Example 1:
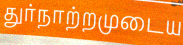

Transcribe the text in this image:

துர்நாற்றமுடைய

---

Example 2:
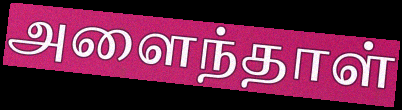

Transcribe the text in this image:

அளைந்தாள்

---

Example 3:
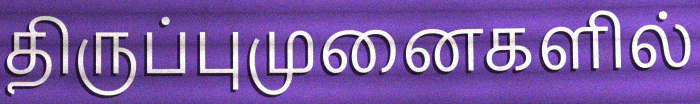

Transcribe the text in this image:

திருப்புமுனைகளில்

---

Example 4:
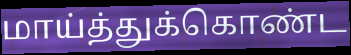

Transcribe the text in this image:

மாய்த்துக்கொண்ட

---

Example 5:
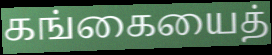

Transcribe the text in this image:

கங்கையைத்